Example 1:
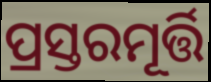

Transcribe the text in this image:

ପ୍ରସ୍ତରମୂର୍ତ୍ତି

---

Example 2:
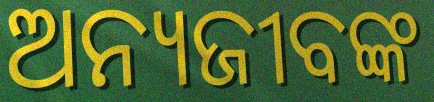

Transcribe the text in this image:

ଅନ୍ୟଜୀବଙ୍କ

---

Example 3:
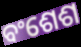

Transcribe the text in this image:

ବଂଶେଶ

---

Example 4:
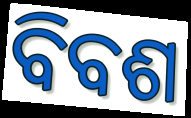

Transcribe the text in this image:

ବିବଶ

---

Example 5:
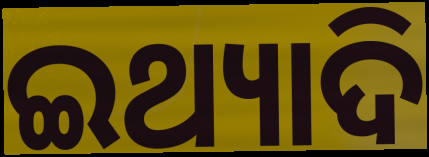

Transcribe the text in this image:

ଇଥ୍ୟାଦି